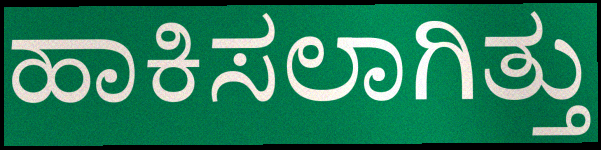
ಹಾಕಿಸಲಾಗಿತ್ತು